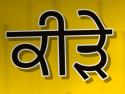
ਕੀੜੇ